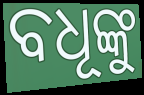
ବଧୂଙ୍କୁ